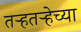
तऱ्हतऱ्हेच्या